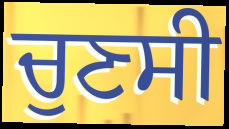
ਚੁਣਸੀ